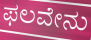
ಫಲವೇನು